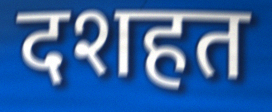
दशहत